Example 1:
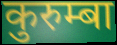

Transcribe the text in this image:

कुरुम्बा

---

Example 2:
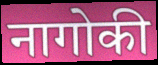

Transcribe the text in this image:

नागोकी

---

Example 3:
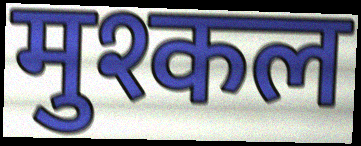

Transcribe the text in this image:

मुश्कल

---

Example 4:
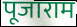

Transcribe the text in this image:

पूजाराम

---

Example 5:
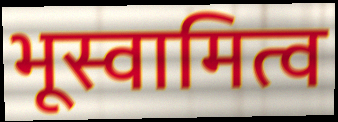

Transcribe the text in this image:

भूस्वामित्व